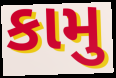
કામુ